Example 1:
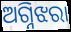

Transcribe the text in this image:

ଅଗ୍ନିଝରା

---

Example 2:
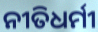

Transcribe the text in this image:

ନୀତିଧର୍ମୀ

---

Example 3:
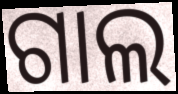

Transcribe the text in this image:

ଗାଲ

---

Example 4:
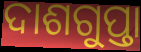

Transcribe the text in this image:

ଦାଶଗୁପ୍ତା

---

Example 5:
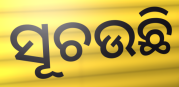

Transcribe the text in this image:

ସୂଚଉଛି